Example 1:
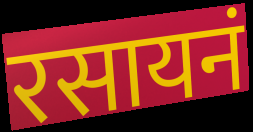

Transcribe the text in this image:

रसायनं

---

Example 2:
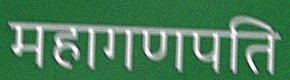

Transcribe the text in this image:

महागणपति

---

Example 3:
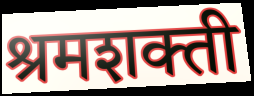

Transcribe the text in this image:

श्रमशक्ती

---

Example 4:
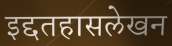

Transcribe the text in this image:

इद्दतहासलेखन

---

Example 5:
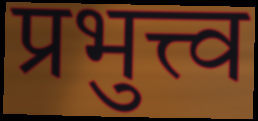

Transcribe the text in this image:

प्रभुत्त्व